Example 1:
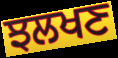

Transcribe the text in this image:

ਝਲਖਣ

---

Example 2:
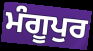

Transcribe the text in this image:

ਮੰਗੂਪੁਰ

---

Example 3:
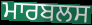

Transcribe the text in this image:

ਮਾਰਬਲਸ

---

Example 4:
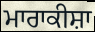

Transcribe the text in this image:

ਮਾਰਾਕੀਸ਼ਾ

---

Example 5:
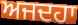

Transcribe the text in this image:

ਅਜਦਹਾ